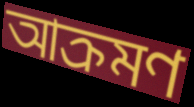
আক্রমণ